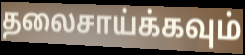
தலைசாய்க்கவும்